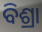
ବିଶ୍ରା